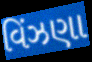
વિંઝણા